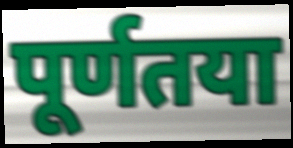
पूर्णतया